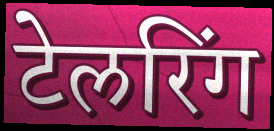
टेलरिंग